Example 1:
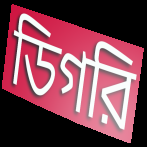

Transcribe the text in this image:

ডিগরি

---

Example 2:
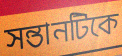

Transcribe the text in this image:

সন্তানটিকে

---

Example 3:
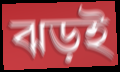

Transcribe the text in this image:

ঝড়ই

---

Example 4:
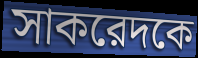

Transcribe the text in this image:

সাকরেদকে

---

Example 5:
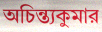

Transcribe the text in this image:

অচিন্ত্যকুমার